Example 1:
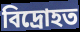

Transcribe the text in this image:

বিদ্ৰোহত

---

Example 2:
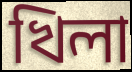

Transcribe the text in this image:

খিলা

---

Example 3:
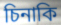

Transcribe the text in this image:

চিনাকি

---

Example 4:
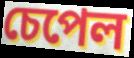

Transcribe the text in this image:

চেপেল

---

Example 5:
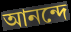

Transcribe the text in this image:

আনন্দে